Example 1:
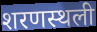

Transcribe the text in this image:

शरणस्थली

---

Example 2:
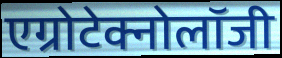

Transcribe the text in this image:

एग्रोटेक्नोलॉजी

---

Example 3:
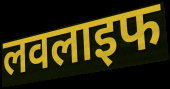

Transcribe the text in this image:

लवलाइफ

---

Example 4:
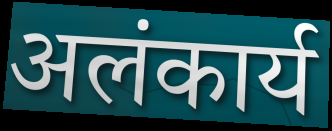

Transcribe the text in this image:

अलंकार्य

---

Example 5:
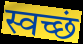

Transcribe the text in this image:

स्वच्छं